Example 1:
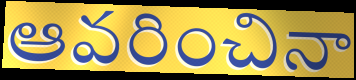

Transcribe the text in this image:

ఆవరించినా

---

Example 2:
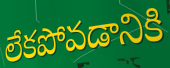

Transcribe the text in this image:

లేకపోవడానికి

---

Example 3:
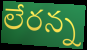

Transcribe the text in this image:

లేరన్న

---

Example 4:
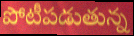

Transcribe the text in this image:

పోటీపడుతున్న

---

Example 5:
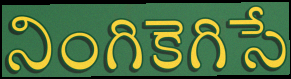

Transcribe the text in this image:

నింగికెగిసే